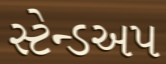
સ્ટેન્ડઅપ